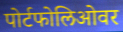
पोर्टफोलिओवर